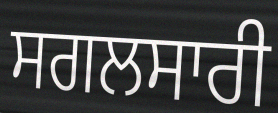
ਸਗਲਸਾਰੀ